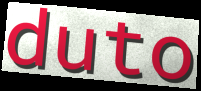
duto